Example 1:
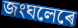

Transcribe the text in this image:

জংঘলেৰে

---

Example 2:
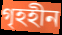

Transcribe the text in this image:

গৃহহীন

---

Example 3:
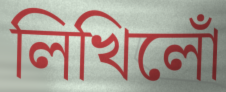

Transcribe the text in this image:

লিখিলোঁ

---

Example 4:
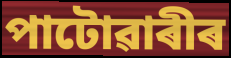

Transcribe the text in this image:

পাটোৱাৰীৰ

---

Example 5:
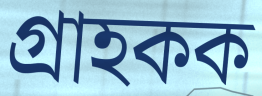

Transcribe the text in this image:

গ্ৰাহকক